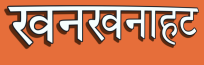
खनखनाहट